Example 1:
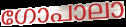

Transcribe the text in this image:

ഗോപാലാ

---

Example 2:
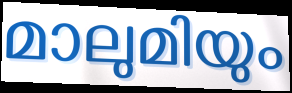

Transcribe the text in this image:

മാലുമിയും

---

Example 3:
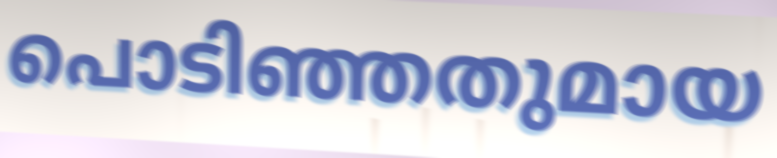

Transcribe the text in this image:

പൊടിഞ്ഞതുമായ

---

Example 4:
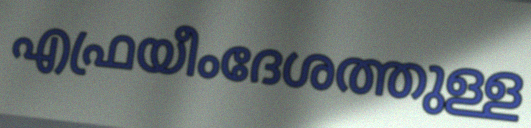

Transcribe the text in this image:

എഫ്രയീംദേശത്തുള്ള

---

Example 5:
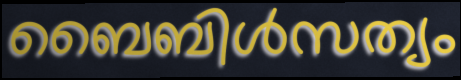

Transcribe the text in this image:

ബൈബിൾസത്യം